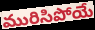
మురిసిపోయే